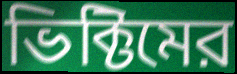
ভিক্টিমের